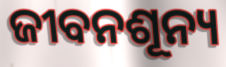
ଜୀବନଶୂନ୍ୟ